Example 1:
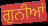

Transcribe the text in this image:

ਗੁਨੀਆਂ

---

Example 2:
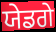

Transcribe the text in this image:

ਯੇਡਗੇ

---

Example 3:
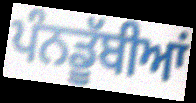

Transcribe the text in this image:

ਪੰਨਡੂੱਬੀਆਂ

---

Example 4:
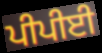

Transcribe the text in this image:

ਪੀਪੀਈ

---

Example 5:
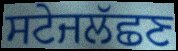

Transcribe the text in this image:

ਸਟੇਜਲੱਛਣ